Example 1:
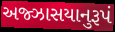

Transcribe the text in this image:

અજ્ઝાસયાનુરૂપં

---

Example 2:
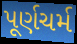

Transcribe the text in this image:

પૂર્ણચર્મ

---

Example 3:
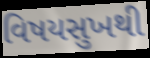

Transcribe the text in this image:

વિષયસુખથી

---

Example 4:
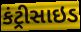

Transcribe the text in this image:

કંટ્રીસાઇડ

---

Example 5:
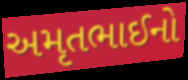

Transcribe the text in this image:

અમૃતભાઈનો